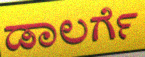
ಡಾಲರ್ಗೆ